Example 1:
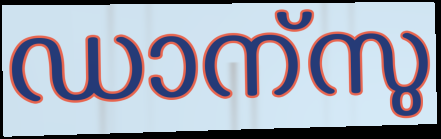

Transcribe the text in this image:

ഡാന്സു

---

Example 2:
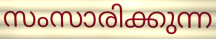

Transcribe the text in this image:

സംസാരിക്കുന്ന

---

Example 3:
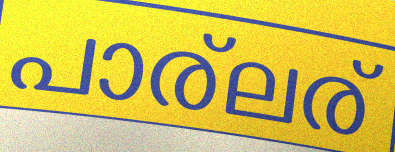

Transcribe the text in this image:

പാര്ലര്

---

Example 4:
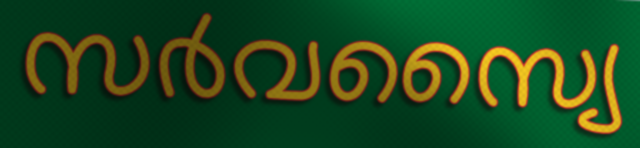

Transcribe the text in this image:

സർവസ്യൈ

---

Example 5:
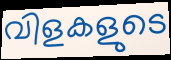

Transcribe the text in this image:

വിളകളുടെ